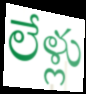
లేళ్లు